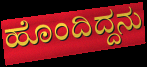
ಹೊಂದಿದ್ದನು